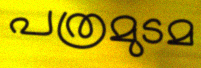
പത്രമുടമ